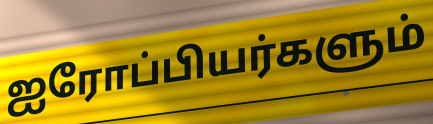
ஐரோப்பியர்களும்